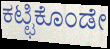
ಕಟ್ಟಿಕೊಂಡೇ